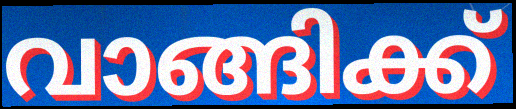
വാങ്ങിക്ക്